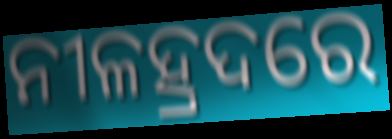
ନୀଳହ୍ରଦରେ